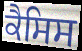
ਕੈਸਿਸ